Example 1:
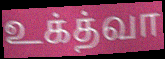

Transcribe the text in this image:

உக்த்வா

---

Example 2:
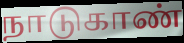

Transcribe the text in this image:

நாடுகாண்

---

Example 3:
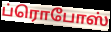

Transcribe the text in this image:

ப்ரொபோஸ்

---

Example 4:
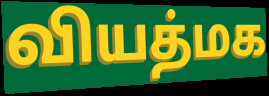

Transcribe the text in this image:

வியத்மக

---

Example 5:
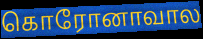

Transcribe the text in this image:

கொரோனாவால